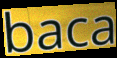
baca